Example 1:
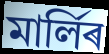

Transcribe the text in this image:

মাৰ্লিৰ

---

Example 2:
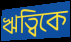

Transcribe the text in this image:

ঋত্বিকে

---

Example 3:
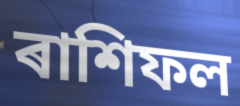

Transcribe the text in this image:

ৰাশিফল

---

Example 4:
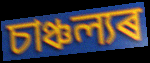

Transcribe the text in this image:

চাঞ্চল্যৰ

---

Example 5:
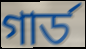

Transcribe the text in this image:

গাৰ্ড